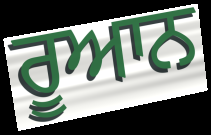
ਰੂਆਨ